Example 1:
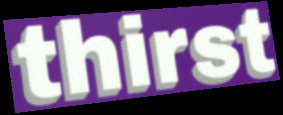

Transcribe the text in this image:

thirst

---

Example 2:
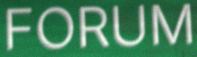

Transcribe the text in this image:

FORUM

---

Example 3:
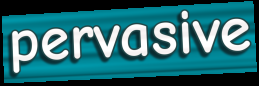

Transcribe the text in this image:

pervasive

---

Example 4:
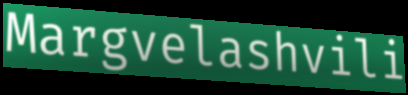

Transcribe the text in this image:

Margvelashvili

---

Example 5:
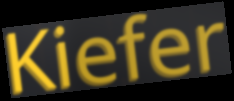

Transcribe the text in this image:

Kiefer